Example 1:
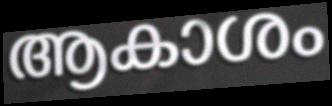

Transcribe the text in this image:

ആകാശം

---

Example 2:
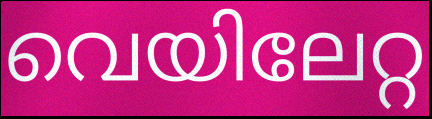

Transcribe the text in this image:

വെയിലേറ്റ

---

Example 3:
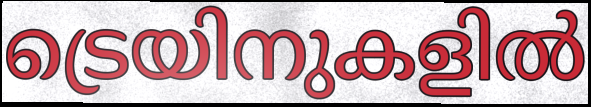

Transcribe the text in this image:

ട്രെയിനുകളിൽ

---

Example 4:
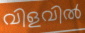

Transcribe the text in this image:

വിളവിൽ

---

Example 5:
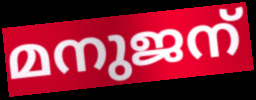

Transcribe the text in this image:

മനുജന്